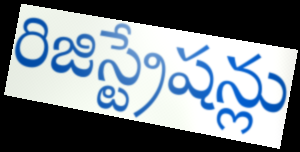
రిజిస్ట్రేషన్లు